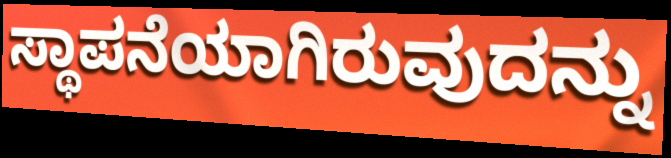
ಸ್ಥಾಪನೆಯಾಗಿರುವುದನ್ನು